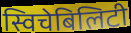
स्विचेबिलिटी